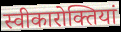
स्वीकारोक्तियां